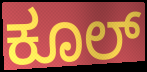
ಕೂಲ್